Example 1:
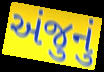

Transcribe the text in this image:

અંજુનું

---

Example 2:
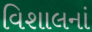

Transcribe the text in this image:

વિશાલનાં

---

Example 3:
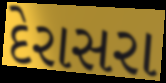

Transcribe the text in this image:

દેરાસરા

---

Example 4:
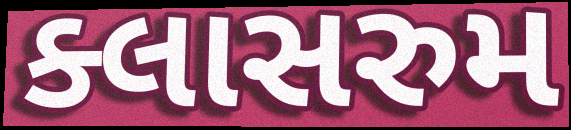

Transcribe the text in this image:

ક્લાસરુમ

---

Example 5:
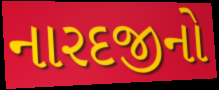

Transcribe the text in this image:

નારદજીનો